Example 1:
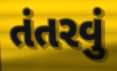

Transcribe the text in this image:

તંતરવું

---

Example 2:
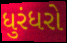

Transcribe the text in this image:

ધુરંધરો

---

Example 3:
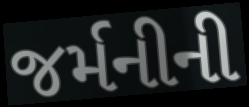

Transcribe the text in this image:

જર્મનીની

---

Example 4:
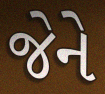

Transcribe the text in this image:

જેને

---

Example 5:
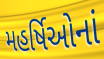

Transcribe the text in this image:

મહર્ષિઓનાં